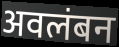
अवलंबन